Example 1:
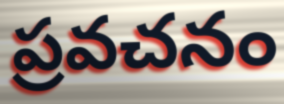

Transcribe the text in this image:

ప్రవచనం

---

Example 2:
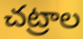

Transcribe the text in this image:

చట్రాల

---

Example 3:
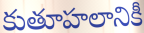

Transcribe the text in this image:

కుతూహలానికీ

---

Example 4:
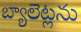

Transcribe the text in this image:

బ్యాలెట్లను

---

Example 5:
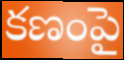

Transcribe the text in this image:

కణంపై